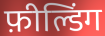
फ़ील्डिंग